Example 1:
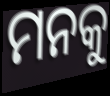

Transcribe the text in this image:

ମନକୁ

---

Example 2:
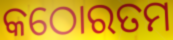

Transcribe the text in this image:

କଠୋରତମ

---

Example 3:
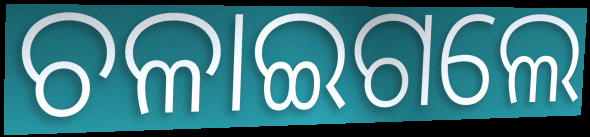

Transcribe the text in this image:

ଚଳାଇଗଲେ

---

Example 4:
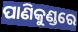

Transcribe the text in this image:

ପାଣିକୁଣ୍ଡରେ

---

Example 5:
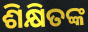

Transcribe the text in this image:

ଶିକ୍ଷିତଙ୍କ